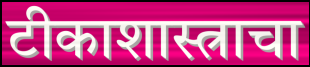
टीकाशास्त्राचा